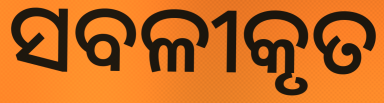
ସବଳୀକୃତ